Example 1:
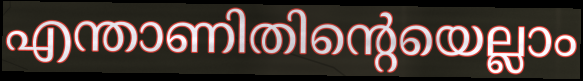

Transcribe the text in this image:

എന്താണിതിന്റെയെല്ലാം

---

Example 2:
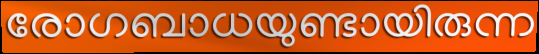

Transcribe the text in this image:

രോഗബാധയുണ്ടായിരുന്ന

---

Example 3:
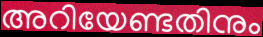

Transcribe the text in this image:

അറിയേണ്ടതിനും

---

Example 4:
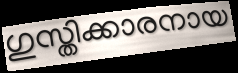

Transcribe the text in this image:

ഗുസ്തിക്കാരനായ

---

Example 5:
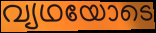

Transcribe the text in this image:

വ്യഥയോടെ